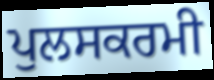
ਪੁਲਸਕਰਮੀ